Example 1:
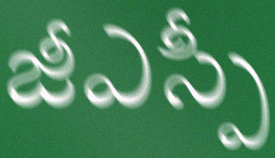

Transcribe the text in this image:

జీఎస్పీ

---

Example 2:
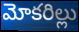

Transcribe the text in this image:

మోకరిల్లు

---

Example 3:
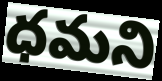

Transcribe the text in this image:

ధమని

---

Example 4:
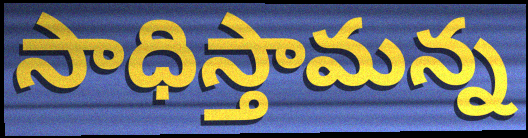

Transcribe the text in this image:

సాధిస్తామన్న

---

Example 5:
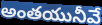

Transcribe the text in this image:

అంతయునీవే